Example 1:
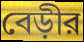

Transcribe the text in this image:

বেড়ীর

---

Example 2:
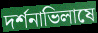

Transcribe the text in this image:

দর্শনাভিলাষে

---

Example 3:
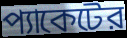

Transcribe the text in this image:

প্যাকেটের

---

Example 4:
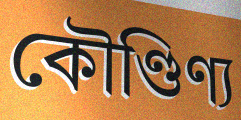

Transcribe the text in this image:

কৌণ্ডিণ্য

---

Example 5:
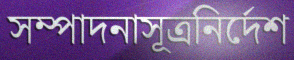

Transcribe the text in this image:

সম্পাদনাসূত্রনির্দেশ